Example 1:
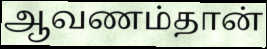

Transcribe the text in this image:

ஆவணம்தான்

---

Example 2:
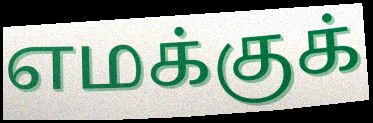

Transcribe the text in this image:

எமக்குக்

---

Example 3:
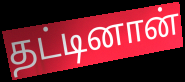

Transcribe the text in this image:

தட்டினான்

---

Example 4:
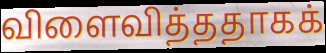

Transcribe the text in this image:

விளைவித்ததாகக்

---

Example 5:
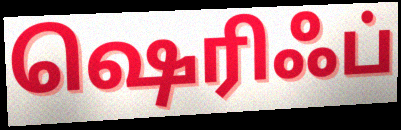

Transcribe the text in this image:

ஷெரிஃப்